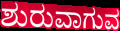
ಶುರುವಾಗುವ